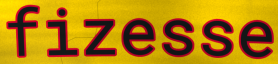
fizesse